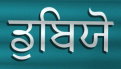
ਡੁਬਿਯੋ